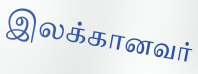
இலக்கானவர்